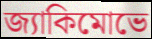
জ্যাকিমোভে